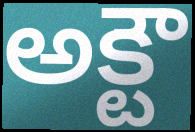
అక్టౌ